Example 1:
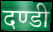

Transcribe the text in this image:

दण्डी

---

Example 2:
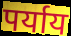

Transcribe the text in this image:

पर्याय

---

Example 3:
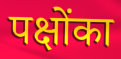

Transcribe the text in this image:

पक्षोंका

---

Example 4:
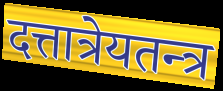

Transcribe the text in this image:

दत्तात्रेयतन्त्र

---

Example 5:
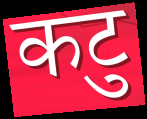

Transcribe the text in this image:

कटु